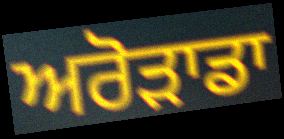
ਅਰੋੜਾਡਾ